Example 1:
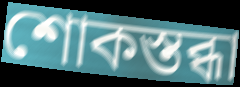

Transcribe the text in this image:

শোকস্তব্ধা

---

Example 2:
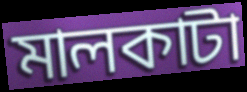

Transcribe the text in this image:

মালকাটা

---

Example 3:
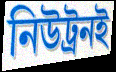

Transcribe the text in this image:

নিউট্রনই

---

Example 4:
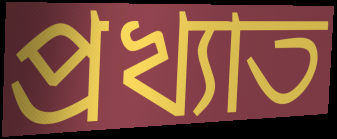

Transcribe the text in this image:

প্রখ্যাত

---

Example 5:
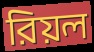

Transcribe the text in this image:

রিয়ল